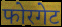
फोरगेट